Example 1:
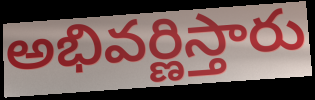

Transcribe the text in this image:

అభివర్ణిస్తారు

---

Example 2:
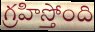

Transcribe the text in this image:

గ్రహిస్తోంది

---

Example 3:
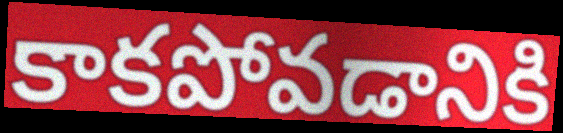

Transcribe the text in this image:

కాకపోవడానికి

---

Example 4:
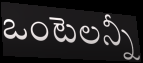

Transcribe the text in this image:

ఒంటెలన్నీ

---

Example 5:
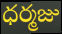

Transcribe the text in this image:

ధర్మజు